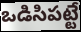
ఒడిసిపట్టే